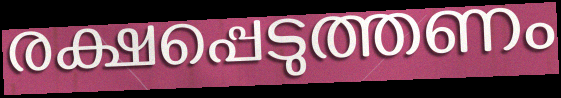
രക്ഷപ്പെടുത്തണം